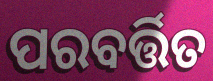
ପରବର୍ତ୍ତିତ